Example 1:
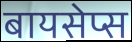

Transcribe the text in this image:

बायसेप्स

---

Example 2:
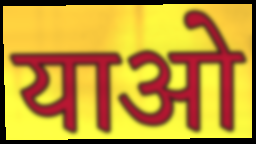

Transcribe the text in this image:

याओ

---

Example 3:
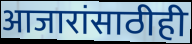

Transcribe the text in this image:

आजारांसाठीही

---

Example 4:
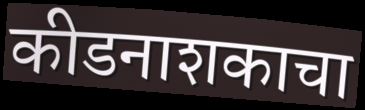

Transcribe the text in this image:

कीडनाशकाचा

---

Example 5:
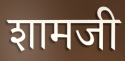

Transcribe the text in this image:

शामजी